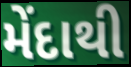
મેંદાથી